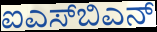
ಐಎಸ್‌ಬಿಎನ್